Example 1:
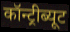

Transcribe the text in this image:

कॉन्ट्रीब्यूट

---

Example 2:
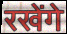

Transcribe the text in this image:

रखेंगे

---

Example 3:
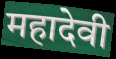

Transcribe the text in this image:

महादेवी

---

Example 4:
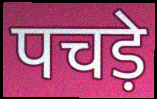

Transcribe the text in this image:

पचड़े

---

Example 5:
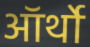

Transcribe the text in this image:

ऑर्थो